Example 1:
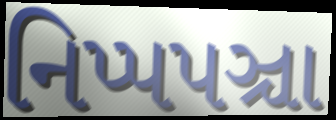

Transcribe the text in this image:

નિપ્પપઞ્ચા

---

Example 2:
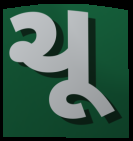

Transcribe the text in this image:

ચૂ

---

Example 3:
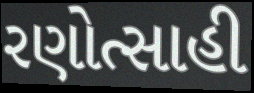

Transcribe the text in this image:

રણોત્સાહી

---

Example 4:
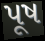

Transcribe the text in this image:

પૂષ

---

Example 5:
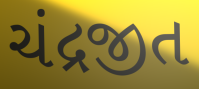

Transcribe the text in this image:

ચંદ્રજીત